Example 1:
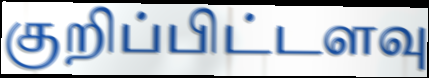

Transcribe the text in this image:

குறிப்பிட்டளவு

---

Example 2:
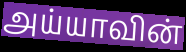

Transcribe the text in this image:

அய்யாவின்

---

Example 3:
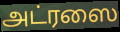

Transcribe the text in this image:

அட்ரஸை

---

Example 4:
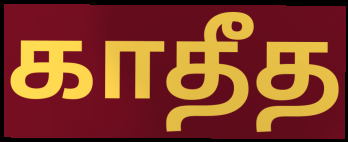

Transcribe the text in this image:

காதீத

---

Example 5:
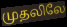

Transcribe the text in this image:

முதலிலே